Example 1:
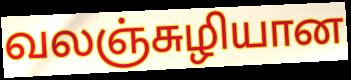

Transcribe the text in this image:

வலஞ்சுழியான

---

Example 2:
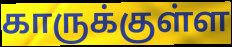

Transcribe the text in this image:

காருக்குள்ள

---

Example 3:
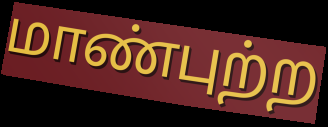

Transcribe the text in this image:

மாண்புற்ற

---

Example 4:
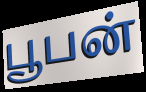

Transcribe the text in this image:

பூபன்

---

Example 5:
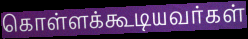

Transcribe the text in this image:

கொள்ளக்கூடியவர்கள்